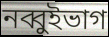
নব্বুইভাগ